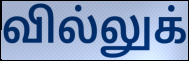
வில்லுக்